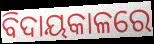
ବିଦାୟକାଳରେ